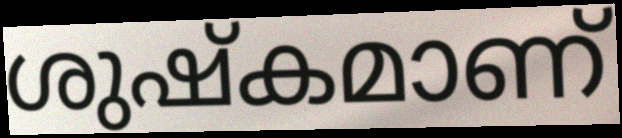
ശുഷ്കമാണ്